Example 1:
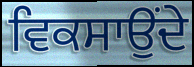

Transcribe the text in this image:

ਵਿਕਸਾਉਂਦੇ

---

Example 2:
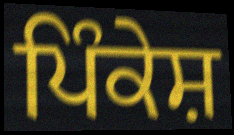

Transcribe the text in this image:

ਪਿੰਕੇਸ਼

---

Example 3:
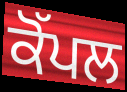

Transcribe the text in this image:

ਕੋੱਪਲ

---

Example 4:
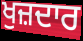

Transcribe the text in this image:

ਖੁਜ਼ਦਾਰ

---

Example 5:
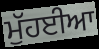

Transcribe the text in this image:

ਮੁੱਹਈਆ